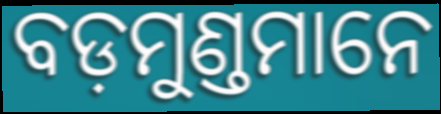
ବଡ଼ମୁଣ୍ଡମାନେ